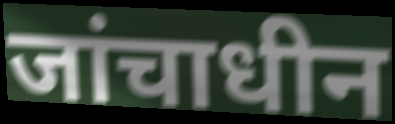
जांचाधीन